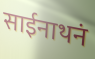
साईनाथनं